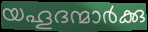
യഹൂദന്മാർക്കു